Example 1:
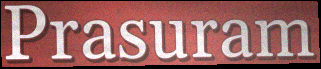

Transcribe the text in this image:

Prasuram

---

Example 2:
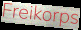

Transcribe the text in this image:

Freikorps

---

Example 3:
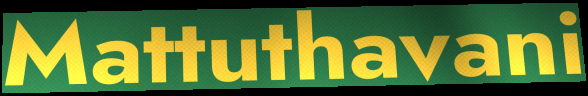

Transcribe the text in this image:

Mattuthavani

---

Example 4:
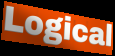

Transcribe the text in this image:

Logical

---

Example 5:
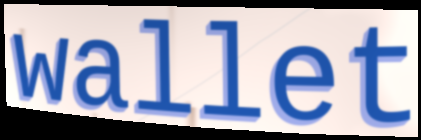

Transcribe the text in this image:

wallet